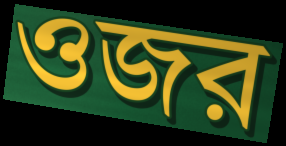
ওজর